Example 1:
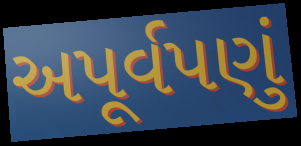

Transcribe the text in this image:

અપૂર્વપણું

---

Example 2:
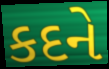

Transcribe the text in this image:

કદને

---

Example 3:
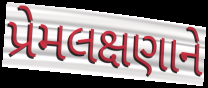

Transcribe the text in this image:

પ્રેમલક્ષણાને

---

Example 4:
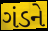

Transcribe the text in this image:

ગંડને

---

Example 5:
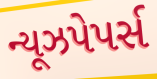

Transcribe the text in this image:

ન્યૂઝપેપર્સ